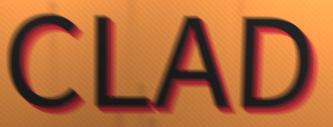
CLAD